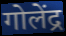
गोलेंद्र